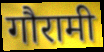
गौरामी